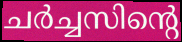
ചർച്ചസിന്റെ